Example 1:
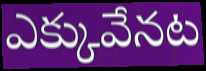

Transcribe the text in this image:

ఎక్కువేనట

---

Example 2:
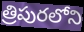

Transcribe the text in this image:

త్రిపురలోని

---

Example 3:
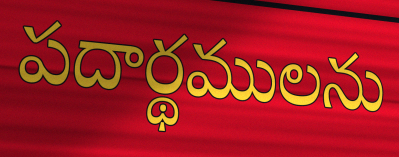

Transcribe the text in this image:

పదార్థములను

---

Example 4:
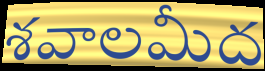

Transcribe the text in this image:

శవాలమీద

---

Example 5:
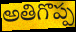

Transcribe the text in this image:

అతిగొప్ప